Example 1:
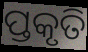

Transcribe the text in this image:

ପ୍ତକୃତି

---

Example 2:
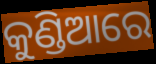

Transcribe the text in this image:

କୁଣ୍ଡିଆରେ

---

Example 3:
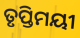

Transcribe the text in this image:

ତୃପ୍ତିମୟୀ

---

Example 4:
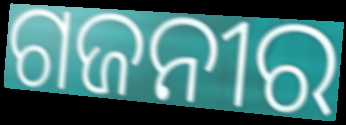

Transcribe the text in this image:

ଗଜନୀର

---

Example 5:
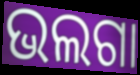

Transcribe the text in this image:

ଭଲଗା